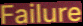
Failure